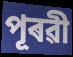
পূৰৱী